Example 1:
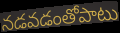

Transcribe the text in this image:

నడవడంతోపాటు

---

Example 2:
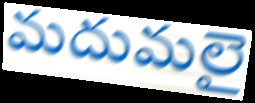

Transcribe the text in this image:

మదుమలై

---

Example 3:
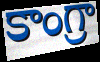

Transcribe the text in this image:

కాంగ్రా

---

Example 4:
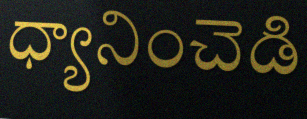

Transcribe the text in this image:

ధ్యానించెడి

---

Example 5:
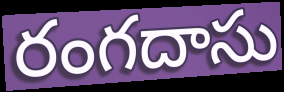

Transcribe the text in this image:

రంగదాసు